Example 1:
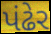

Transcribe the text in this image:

પંઢેર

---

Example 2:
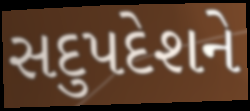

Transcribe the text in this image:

સદુપદેશને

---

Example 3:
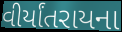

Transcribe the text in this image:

વીર્યાંતરાયના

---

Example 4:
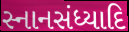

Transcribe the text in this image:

સ્નાનસંધ્યાદિ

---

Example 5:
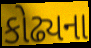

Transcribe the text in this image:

કોઢ્યના